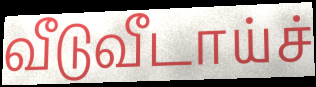
வீடுவீடாய்ச்